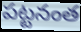
పట్టనంత